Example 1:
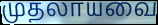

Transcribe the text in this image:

முதலாயவை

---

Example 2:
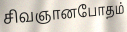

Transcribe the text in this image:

சிவஞானபோதம்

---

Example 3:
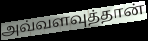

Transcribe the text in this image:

அவ்வளவுத்தான்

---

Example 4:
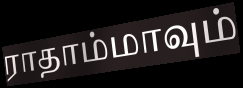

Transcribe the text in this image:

ராதாம்மாவும்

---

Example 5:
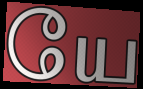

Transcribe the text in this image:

யே